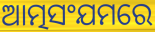
ଆତ୍ମସଂଯମରେ